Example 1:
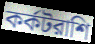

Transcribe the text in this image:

কর্কটরাশি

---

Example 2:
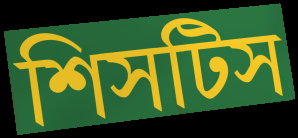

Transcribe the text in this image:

শিসটিস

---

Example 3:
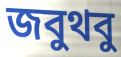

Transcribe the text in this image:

জবুথবু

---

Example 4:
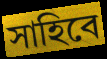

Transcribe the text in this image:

সাহিবে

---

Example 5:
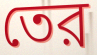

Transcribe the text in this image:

তের